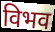
विभव